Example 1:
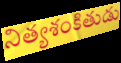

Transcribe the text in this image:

నిత్యశంకితుడు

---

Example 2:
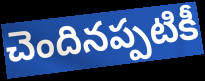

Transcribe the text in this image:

చెందినప్పటికీ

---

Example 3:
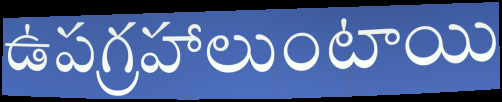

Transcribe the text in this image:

ఉపగ్రహాలుంటాయి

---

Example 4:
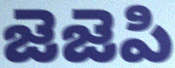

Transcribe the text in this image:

జెజెపి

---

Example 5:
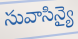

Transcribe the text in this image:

సువాసిన్యై